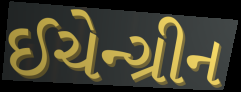
ઈચેન્ગ્રીન